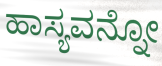
ಹಾಸ್ಯವನ್ನೋ